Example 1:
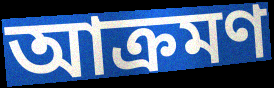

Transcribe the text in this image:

আক্রমণ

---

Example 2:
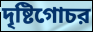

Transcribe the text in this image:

দৃষ্টিগোচর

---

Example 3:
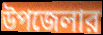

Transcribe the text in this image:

উপজেলার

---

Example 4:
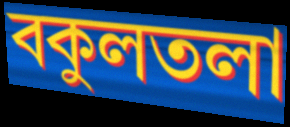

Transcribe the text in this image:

বকুলতলা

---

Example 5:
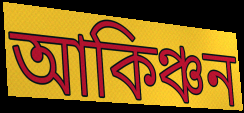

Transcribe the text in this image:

আকিঞ্চন